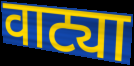
वाट्या